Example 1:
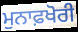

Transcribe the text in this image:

ਮੁਨਾਫ਼ਖੋਰੀ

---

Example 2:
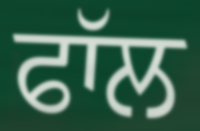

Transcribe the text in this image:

ਫਾੱਲ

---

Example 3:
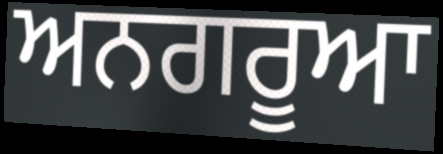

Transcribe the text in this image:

ਅਨਗਰੂਆ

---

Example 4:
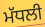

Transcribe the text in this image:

ਮੱਧਲੀ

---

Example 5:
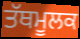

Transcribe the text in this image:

ਤੱਥਮੂਲਕ